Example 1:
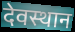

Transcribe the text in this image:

देवस्थान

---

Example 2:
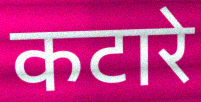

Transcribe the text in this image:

कटारे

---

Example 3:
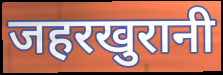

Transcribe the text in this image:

जहरखुरानी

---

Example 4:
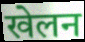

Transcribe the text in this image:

खेलन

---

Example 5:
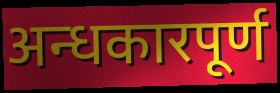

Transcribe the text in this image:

अन्धकारपूर्ण